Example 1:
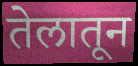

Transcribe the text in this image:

तेलातून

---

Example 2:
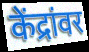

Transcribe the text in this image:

केंद्रांवर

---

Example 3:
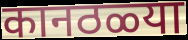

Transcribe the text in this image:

कानठळ्या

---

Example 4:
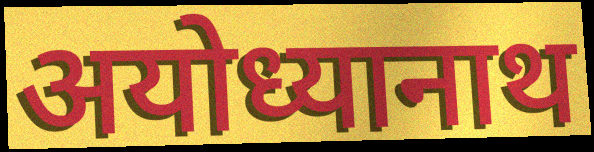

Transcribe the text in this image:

अयोध्यानाथ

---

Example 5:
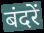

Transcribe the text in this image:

बंदरें